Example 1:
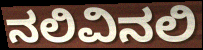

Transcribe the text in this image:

ನಲಿವಿನಲಿ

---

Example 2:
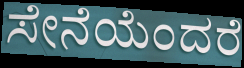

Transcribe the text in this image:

ಸೇನೆಯೆಂದರೆ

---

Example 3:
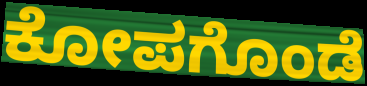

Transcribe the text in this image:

ಕೋಪಗೊಂಡೆ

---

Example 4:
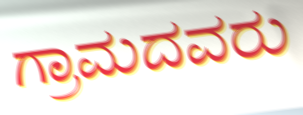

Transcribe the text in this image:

ಗ್ರಾಮದವರು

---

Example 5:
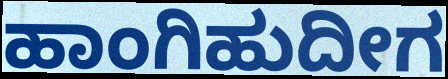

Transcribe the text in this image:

ಹಾಂಗಿಹುದೀಗ